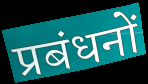
प्रबंधनों